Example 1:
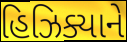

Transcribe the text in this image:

હિઝિક્યાને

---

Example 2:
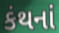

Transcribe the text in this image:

કંથનાં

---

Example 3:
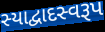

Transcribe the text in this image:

સ્યાદ્વાદસ્વરૂપ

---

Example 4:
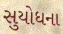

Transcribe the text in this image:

સુયોધના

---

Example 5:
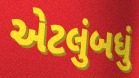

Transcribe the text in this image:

એટલુંબધું